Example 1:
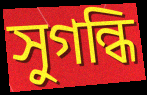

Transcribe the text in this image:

সুগন্ধি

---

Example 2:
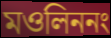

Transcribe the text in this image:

মওলিননং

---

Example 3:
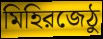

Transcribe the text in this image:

মিহিরজেঠু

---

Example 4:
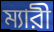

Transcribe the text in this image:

ম্যারী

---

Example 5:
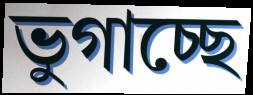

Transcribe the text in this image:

ভুগাচ্ছে